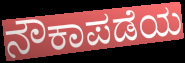
ನೌಕಾಪಡೆಯ